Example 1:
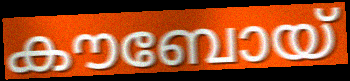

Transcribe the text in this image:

കൗബോയ്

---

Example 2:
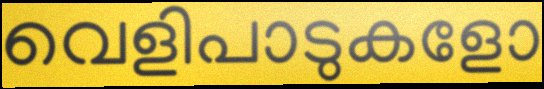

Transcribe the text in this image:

വെളിപാടുകളോ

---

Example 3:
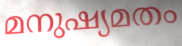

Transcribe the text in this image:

മനുഷ്യമതം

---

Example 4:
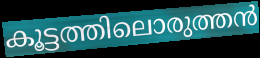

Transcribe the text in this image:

കൂട്ടത്തിലൊരുത്തൻ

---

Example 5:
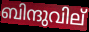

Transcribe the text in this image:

ബിന്ദുവില്